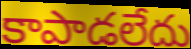
కాపాడలేదు